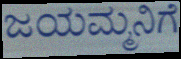
ಜಯಮ್ಮನಿಗೆ